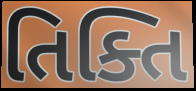
તિક્તિ